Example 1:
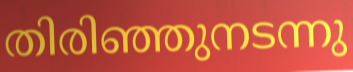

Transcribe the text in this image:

തിരിഞ്ഞുനടന്നു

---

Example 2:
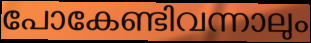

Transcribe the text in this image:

പോകേണ്ടിവന്നാലും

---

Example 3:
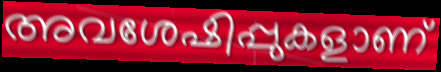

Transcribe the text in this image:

അവശേഷിപ്പുകളാണ്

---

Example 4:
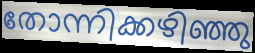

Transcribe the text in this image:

തോന്നിക്കഴിഞ്ഞു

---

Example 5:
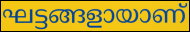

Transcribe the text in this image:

ഘട്ടങ്ങളായാണ്